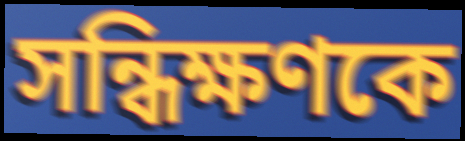
সন্ধিক্ষণকে